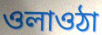
ওলাওঠা